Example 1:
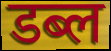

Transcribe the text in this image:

डब्ल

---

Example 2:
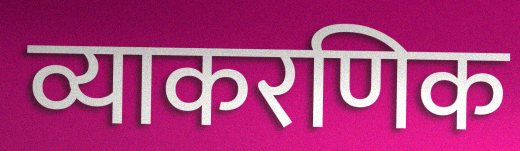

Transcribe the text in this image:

व्याकरणिक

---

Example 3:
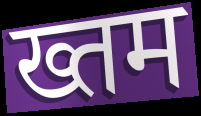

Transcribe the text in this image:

ख्तम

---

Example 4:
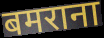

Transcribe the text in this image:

बमराना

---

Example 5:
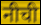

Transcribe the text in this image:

नीची